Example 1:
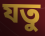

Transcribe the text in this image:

যতু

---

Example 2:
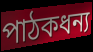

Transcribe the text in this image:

পাঠকধন্য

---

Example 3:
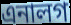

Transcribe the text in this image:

এনালগ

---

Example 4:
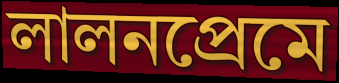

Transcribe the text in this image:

লালনপ্রেমে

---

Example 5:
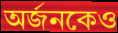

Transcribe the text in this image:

অর্জনকেও